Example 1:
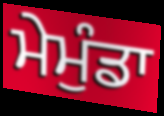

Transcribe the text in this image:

ਮੇਮੁੰਡਾ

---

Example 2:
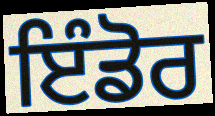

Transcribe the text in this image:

ਇੰਡੋਰ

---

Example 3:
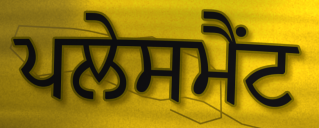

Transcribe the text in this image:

ਪਲੇਸਮੈਂਟ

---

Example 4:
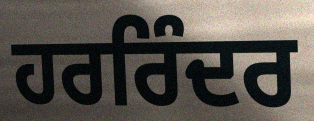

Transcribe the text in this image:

ਹਰਰਿੰਦਰ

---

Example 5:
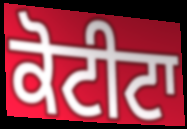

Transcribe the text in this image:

ਕੋਟੀਟਾ